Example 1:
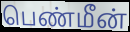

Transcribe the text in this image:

பெண்மீன்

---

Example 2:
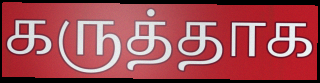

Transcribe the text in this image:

கருத்தாக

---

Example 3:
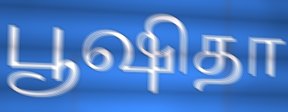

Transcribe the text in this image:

பூஷிதா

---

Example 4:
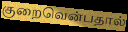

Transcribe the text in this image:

குறைவென்பதால்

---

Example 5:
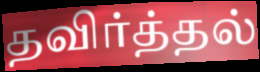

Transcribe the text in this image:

தவிர்த்தல்